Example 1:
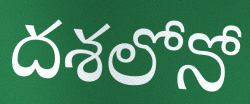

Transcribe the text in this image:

దశలోనో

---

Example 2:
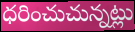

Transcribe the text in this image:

ధరించుచున్నట్లు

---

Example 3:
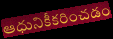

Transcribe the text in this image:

ఆధునికీకరించడం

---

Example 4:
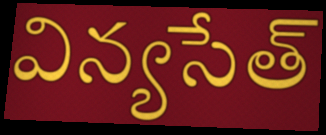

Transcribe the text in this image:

విన్యసేత్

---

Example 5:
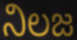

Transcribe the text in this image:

నిలజ